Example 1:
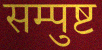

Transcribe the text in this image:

सम्पुष्ट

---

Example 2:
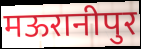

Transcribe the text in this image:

मऊरानीपुर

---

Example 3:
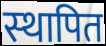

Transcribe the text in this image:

स्‍थापित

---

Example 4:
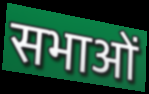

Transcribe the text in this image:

सभाओं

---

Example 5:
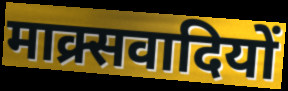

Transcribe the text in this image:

माक्र्सवादियों